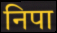
निपा